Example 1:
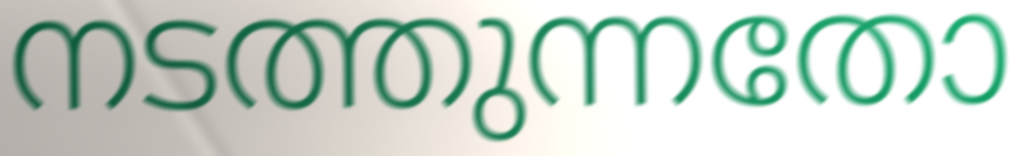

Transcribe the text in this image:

നടത്തുന്നതോ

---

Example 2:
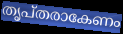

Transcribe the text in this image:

തൃപ്തരാകേണം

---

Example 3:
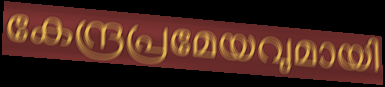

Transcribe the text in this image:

കേന്ദ്രപ്രമേയവുമായി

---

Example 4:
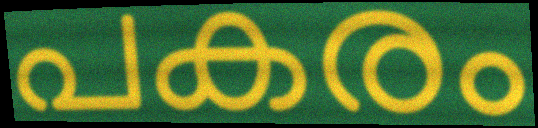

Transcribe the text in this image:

പകരം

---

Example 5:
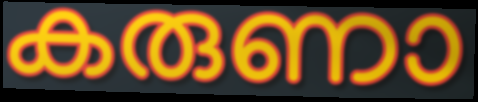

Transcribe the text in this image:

കരുണാ